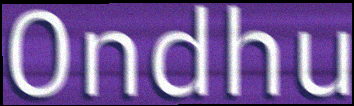
Ondhu